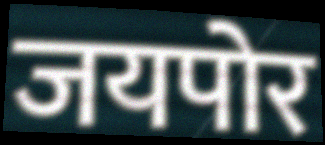
जयपोर